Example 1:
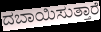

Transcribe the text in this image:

ದಬಾಯಿಸುತ್ತಾರೆ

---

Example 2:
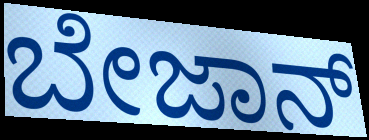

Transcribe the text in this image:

ಬೇಜಾನ್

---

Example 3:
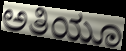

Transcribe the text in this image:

ಅತಿಯೂ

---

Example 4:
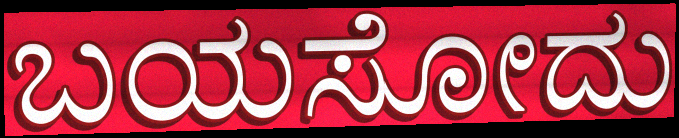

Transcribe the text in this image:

ಬಯಸೋದು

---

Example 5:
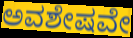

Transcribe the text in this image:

ಅವಶೇಷವೇ